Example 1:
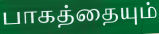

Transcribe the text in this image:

பாகத்தையும்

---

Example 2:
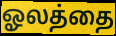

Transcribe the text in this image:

ஓலத்தை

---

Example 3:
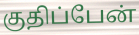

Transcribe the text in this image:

குதிப்பேன்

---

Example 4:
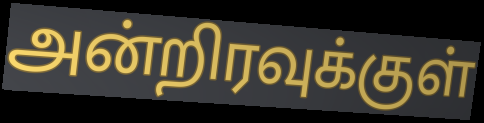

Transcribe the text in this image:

அன்றிரவுக்குள்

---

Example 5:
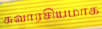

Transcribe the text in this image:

சுவாரசியமாக